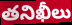
తనిఖీలు